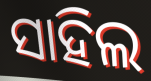
ସାହିଲ